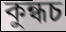
কুন্ধচ